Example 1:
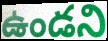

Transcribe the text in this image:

ఉండని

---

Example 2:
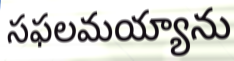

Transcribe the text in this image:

సఫలమయ్యాను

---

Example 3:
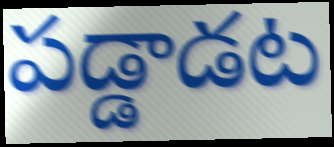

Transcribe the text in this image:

పడ్డాడట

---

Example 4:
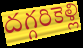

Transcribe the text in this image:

దగ్గరికెళ్లి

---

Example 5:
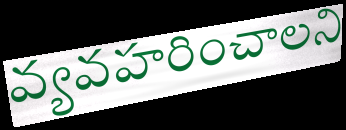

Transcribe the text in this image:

వ్యవహరించాలని